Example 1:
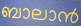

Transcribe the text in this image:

ബാലാൻ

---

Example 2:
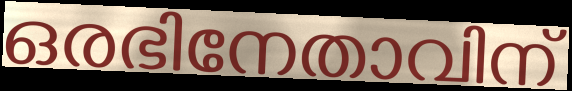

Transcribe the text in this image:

ഒരഭിനേതാവിന്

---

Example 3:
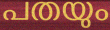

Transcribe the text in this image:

പതയും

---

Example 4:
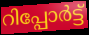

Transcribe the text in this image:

റിപ്പോർട്ട്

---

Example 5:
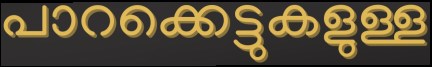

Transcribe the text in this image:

പാറക്കെട്ടുകളുള്ള